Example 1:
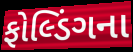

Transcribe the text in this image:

ફોલ્ડિંગના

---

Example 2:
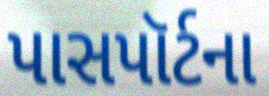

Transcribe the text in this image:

પાસપૉર્ટના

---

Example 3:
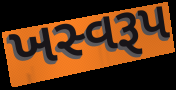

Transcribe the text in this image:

ખસ્વરૂપ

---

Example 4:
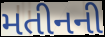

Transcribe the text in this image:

મતીનની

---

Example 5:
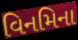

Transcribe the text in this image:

વિનમિના